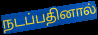
நடப்பதினால்